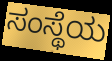
ಸಂಸ್ಥೆಯ